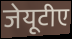
जेयूटीए